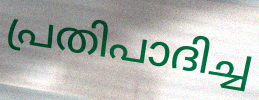
പ്രതിപാദിച്ച